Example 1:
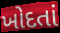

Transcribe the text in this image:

ખોદતાં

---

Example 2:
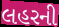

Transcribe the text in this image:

લહરની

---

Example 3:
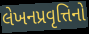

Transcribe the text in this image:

લેખનપ્રવૃત્તિનો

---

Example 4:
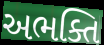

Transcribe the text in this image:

અભક્તિ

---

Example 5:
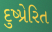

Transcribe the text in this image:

દુષ્પ્રેરિત